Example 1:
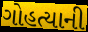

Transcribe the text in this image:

ગોહત્યાની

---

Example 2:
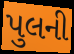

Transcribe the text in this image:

પુલની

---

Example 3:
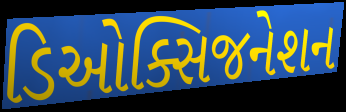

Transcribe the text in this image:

ડિઓક્સિજનેશન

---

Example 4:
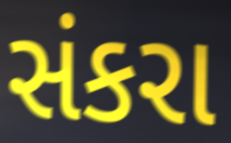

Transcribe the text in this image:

સંકરા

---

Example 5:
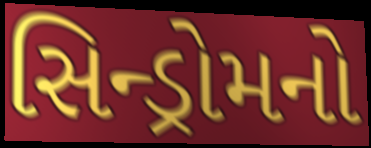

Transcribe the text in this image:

સિન્ડ્રોમનો